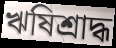
ঋষিশ্রাদ্ধ